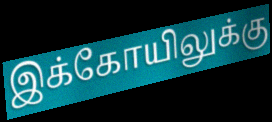
இக்கோயிலுக்கு